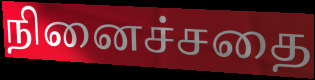
நினைச்சதை